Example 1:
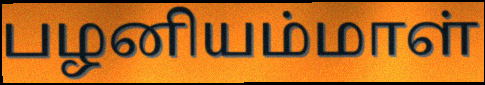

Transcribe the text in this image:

பழனியம்மாள்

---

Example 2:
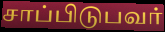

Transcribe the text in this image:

சாப்பிடுபவர்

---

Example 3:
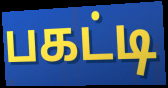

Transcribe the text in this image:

பகட்டி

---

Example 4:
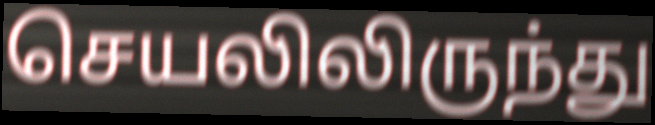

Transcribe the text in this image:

செயலிலிருந்து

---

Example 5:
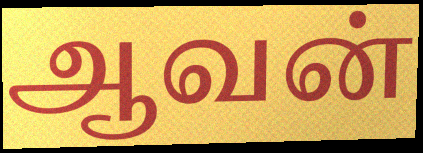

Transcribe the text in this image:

ஆவன்